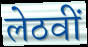
लेठवीं